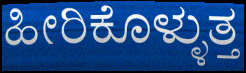
ಹೀರಿಕೊಳ್ಳುತ್ತ